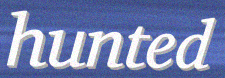
hunted